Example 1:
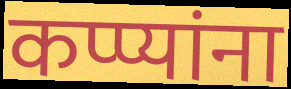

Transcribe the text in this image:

कप्प्यांना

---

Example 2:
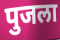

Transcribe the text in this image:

पुजला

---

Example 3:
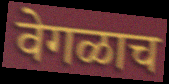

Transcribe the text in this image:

वेगळाच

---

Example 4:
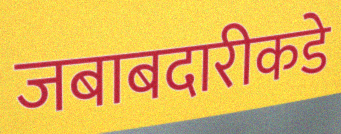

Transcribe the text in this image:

जबाबदारीकडे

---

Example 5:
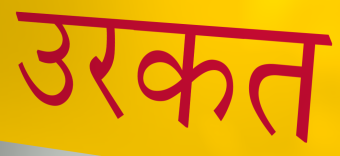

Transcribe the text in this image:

उरकत